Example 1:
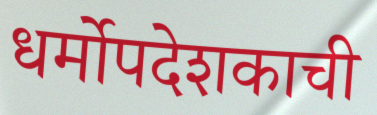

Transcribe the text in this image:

धर्मोपदेशकाची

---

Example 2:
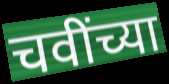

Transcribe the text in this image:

चवींच्या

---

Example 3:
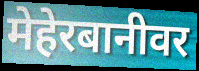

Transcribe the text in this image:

मेहेरबानीवर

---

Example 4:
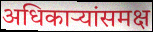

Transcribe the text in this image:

अधिकाऱ्यांसमक्ष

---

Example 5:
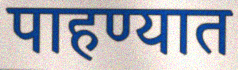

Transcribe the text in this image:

पाहण्यात